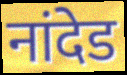
नांदेड